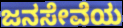
ಜನಸೇವೆಯ